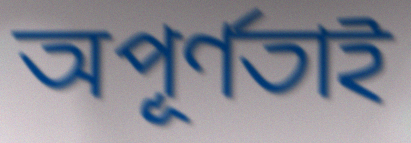
অপূর্ণতাই